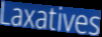
Laxatives